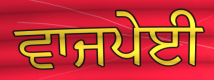
ਵਾਜਪੇਈ